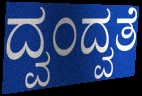
ದ್ವಂದ್ವತೆ